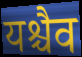
यश्चैव